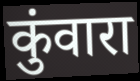
कुंवारा